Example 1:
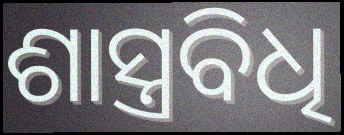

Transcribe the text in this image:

ଶାସ୍ତ୍ରବିଧି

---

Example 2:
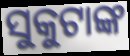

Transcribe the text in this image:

ସୁକୁଟାଙ୍କ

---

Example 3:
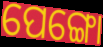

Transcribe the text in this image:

ପେଙ୍ଗୋ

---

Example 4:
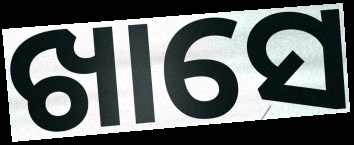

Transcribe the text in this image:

ଖାସେ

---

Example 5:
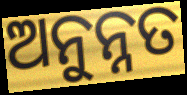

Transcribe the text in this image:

ଅନୁନ୍ନତ